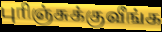
புரிஞ்சுக்குவீங்க